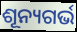
ଶୂନ୍ୟଗର୍ଭ